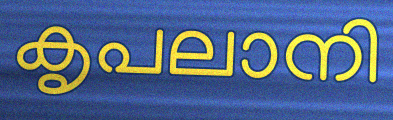
കൃപലാനി